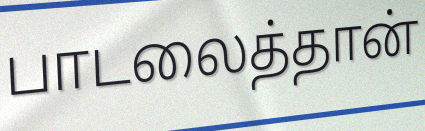
பாடலைத்தான்